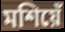
মশিয়েঁ